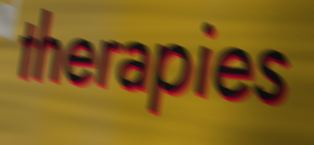
therapies